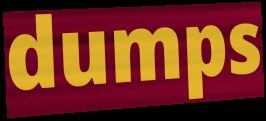
dumps